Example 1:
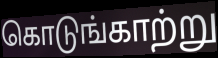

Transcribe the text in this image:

கொடுங்காற்று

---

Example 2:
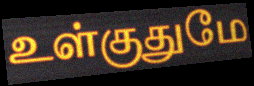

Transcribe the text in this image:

உள்குதுமே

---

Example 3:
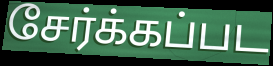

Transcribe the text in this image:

சேர்க்கப்பட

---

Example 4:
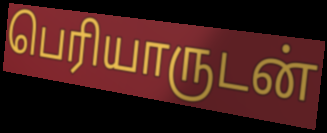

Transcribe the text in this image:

பெரியாருடன்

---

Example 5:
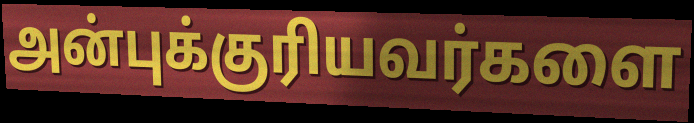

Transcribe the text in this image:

அன்புக்குரியவர்களை